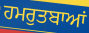
ਹਮਰੁਤਬਾਆਂ